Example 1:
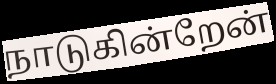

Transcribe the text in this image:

நாடுகின்றேன்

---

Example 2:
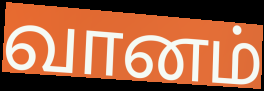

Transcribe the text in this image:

வானம்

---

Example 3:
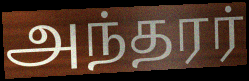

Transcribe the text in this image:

அந்தரர்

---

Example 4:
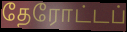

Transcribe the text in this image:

தேரோட்டப்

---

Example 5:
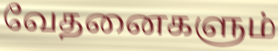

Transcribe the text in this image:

வேதனைகளும்